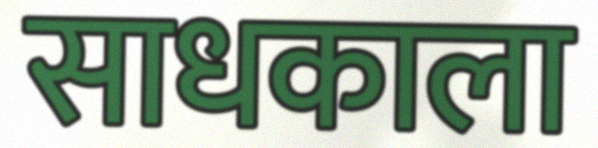
साधकाला